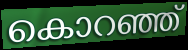
കൊറഞ്ഞ്